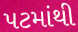
પટમાંથી